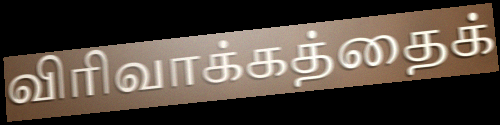
விரிவாக்கத்தைக்